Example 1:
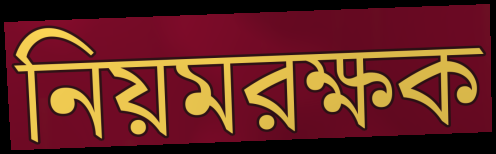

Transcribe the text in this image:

নিয়মরক্ষক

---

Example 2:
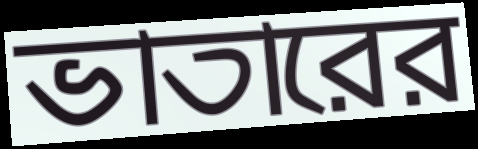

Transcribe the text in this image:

ভাতারের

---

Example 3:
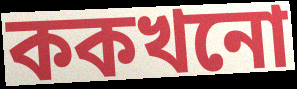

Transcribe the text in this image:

ককখনো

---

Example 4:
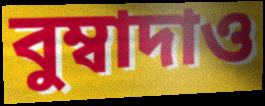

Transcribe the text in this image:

বুম্বাদাও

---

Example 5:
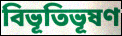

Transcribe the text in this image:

বিভূতিভূষণ